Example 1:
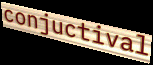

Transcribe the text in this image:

conjuctival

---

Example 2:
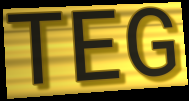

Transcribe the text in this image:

TEG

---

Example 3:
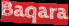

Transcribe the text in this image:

Baqara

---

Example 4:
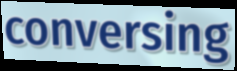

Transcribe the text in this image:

conversing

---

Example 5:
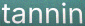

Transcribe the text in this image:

tannin